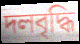
দলবৃদ্ধি